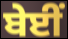
ਬੇਈਂ